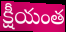
క్షీయంత